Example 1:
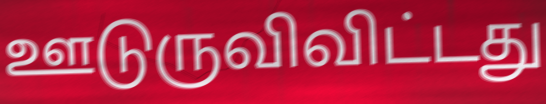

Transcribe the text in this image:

ஊடுருவிவிட்டது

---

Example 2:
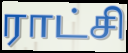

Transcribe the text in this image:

ராட்சி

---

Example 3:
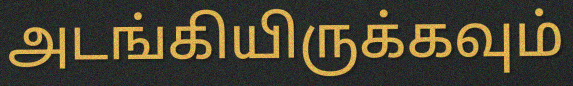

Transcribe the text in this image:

அடங்கியிருக்கவும்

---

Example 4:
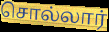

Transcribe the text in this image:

சொல்லார்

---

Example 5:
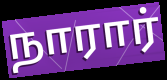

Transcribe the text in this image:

நாரார்